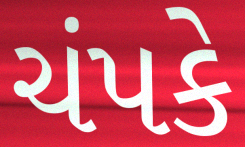
ચંપકે